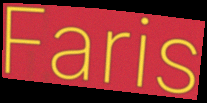
Faris